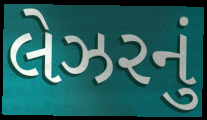
લેઝરનું